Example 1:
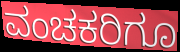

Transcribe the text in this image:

ವಂಚಕರಿಗೂ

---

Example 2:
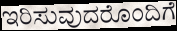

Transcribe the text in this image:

ಇರಿಸುವುದರೊಂದಿಗೆ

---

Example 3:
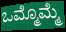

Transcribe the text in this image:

ಒಮ್ಮೊಮ್ಮೆ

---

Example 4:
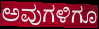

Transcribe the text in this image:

ಅವುಗಳಿಗೂ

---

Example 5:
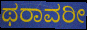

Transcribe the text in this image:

ಥರಾವರೀ